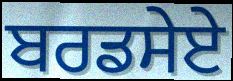
ਬਰਡਸੇਏ